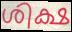
ശിക്ഷ